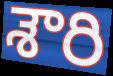
శౌరి